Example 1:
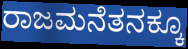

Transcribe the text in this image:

ರಾಜಮನೆತನಕ್ಕೂ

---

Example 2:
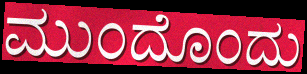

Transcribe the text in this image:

ಮುಂದೊಂದು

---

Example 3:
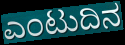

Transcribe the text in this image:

ಎಂಟುದಿನ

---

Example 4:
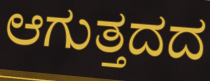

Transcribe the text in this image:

ಆಗುತ್ತದದ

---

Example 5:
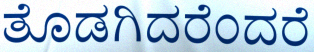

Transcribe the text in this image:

ತೊಡಗಿದರೆಂದರೆ